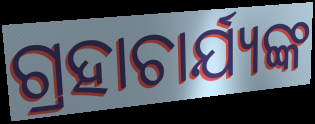
ଗ୍ରହାଚାର୍ଯ୍ୟଙ୍କ